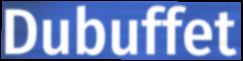
Dubuffet